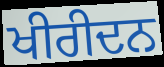
ਖੀਰੀਦਨ